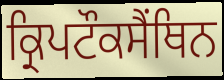
ਕ੍ਰਿਪਟੌਕਸੈਂਥਿਨ